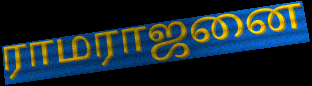
ராமராஜனை